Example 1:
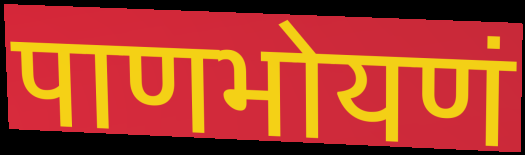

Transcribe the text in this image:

पाणभोयणं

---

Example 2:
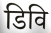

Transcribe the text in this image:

डिवि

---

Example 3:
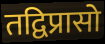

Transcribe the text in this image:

तद्विप्रासो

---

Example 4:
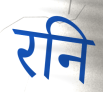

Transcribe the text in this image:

रनि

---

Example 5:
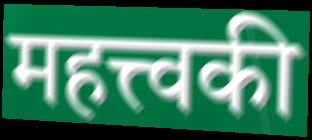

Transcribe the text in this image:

महत्त्वकी